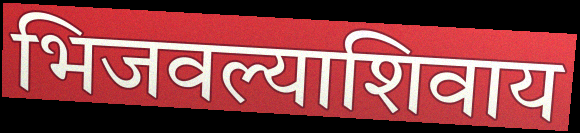
भिजवल्याशिवाय